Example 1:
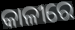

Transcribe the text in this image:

କାଳୀରେ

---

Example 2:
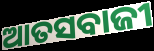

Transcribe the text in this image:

ଆତସବାଜୀ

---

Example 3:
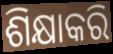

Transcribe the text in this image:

ଶିକ୍ଷାକରି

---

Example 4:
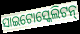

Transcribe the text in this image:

ସାଇଟୋସ୍କେଲିଟନ୍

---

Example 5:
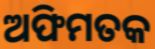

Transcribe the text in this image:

ଅଫିମତକ